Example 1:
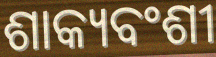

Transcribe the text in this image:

ଶାକ୍ୟବଂଶୀ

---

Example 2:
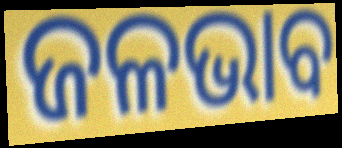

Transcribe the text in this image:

ଜଳଭାବ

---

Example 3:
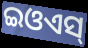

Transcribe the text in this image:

ଇଓଏସ୍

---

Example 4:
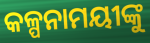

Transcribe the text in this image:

କଳ୍ପନାମୟୀଙ୍କୁ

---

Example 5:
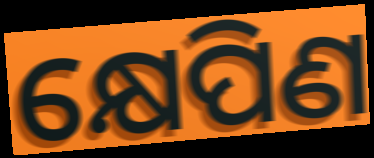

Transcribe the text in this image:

କ୍ଷେପିଣ